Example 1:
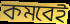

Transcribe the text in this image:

কমবেই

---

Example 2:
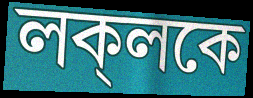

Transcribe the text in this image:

লক্‌লকে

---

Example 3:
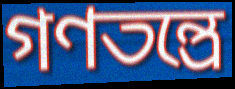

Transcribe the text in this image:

গণতন্ত্রে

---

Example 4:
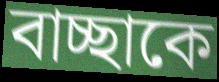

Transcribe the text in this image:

বাচ্ছাকে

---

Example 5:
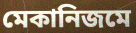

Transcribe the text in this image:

মেকানিজমে